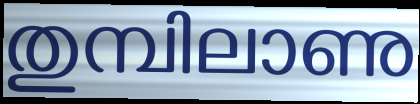
തുമ്പിലാണു